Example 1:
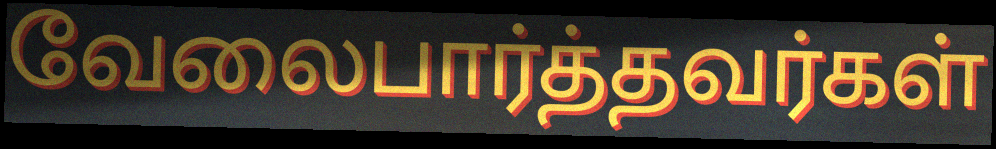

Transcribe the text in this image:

வேலைபார்த்தவர்கள்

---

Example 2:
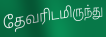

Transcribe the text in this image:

தேவரிடமிருந்து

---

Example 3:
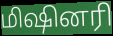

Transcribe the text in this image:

மிஷினரி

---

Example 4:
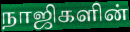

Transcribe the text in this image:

நாஜிகளின்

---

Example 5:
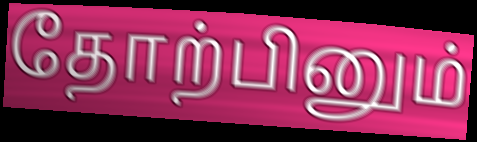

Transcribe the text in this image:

தோற்பினும்